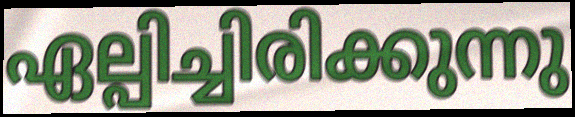
ഏല്പിച്ചിരിക്കുന്നു